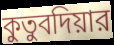
কুতুবদিয়ার